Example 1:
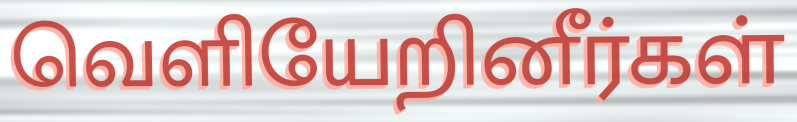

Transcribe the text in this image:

வெளியேறினீர்கள்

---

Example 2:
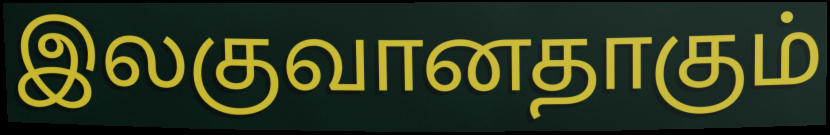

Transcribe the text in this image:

இலகுவானதாகும்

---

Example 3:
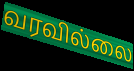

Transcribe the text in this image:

வரவில்லை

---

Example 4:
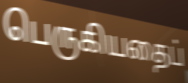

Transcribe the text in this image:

பெருகியதைப்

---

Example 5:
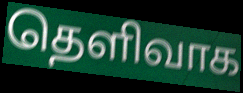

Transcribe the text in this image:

தெளிவாக